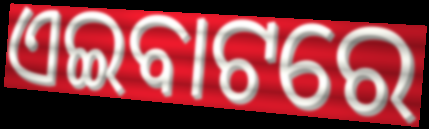
ଏଇବାଟରେ